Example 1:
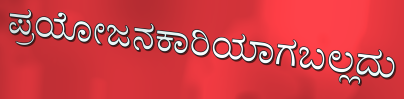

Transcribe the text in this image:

ಪ್ರಯೋಜನಕಾರಿಯಾಗಬಲ್ಲದು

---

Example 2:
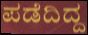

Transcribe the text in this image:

ಪಡೆದಿದ್ದ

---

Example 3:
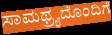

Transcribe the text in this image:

ಸಾಮಥ್ರ್ಯದೊಂದಿಗೆ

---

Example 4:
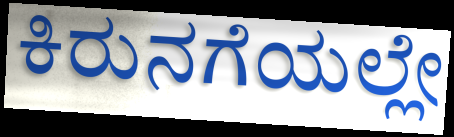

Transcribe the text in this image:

ಕಿರುನಗೆಯಲ್ಲೇ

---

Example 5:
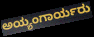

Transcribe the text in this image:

ಅಯ್ಯಂಗಾರ್ಯರು